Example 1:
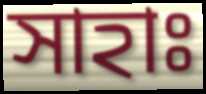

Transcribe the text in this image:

সাহাঃ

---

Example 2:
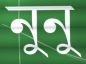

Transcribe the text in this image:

নুনু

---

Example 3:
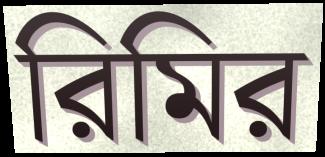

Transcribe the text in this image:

রিমির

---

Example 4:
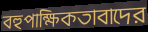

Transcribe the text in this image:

বহুপাক্ষিকতাবাদের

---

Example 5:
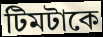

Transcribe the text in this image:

টিমটাকে